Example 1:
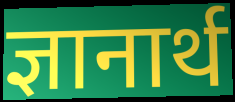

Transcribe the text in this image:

ज्ञानार्थ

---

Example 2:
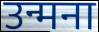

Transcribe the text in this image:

उन्मना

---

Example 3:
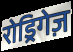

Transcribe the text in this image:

रोड्रिगेज़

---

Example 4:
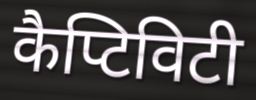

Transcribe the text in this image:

कैप्टिविटी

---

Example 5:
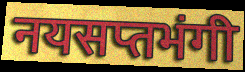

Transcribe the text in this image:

नयसप्तभंगी